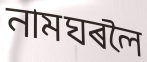
নামঘৰলৈ